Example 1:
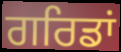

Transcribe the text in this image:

ਗਰਿਡਾਂ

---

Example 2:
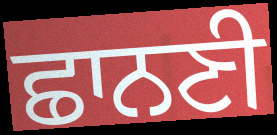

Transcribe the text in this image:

ਛਾਨਣੀ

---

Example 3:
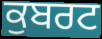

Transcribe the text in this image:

ਕੁਬਰਟ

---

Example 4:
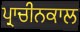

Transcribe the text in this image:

ਪ੍ਰਾਚੀਨਕਾਲ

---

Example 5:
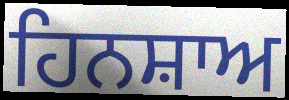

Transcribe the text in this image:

ਹਿਨਸ਼ਾਅ